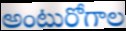
అంటురోగాల